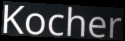
Kocher